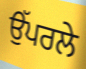
ਉੱਪਰਲੇ